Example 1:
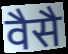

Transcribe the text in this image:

वैसै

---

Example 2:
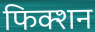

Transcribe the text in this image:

फिक्शन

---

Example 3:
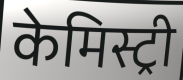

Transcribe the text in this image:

केमिस्ट्री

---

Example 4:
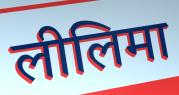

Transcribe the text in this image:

लीलिमा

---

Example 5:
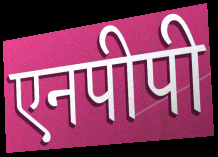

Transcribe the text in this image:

एनपीपी